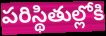
పరిస్థితుల్లోకి